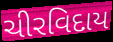
ચીરવિદાય